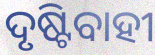
ଦୃଷ୍ଟିବାହୀ